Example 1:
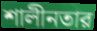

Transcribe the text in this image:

শালীনতার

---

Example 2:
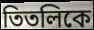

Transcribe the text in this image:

তিতলিকে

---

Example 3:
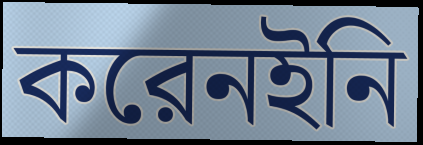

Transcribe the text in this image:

করেনইনি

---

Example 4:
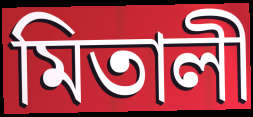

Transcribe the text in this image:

মিতালী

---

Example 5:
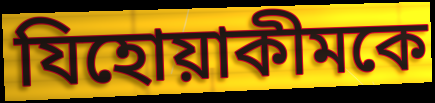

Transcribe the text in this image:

যিহোয়াকীমকে